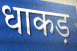
धाकड़